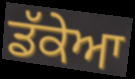
ਡੱਕੇਆ